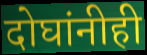
दोघांनीही